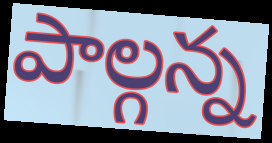
పాల్గన్న